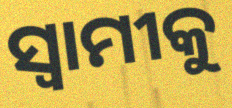
ସ୍ବାମୀକୁ